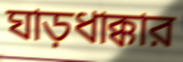
ঘাড়ধাক্কার